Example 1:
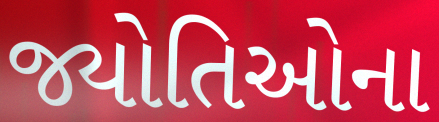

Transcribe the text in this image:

જ્યોતિઓના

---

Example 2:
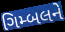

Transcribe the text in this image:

ગિમ્બલને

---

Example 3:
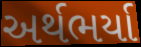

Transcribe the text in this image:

અર્થભર્યા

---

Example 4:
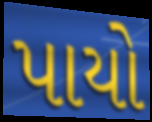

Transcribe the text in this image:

પાયો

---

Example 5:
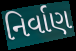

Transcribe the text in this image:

નિર્વાણ